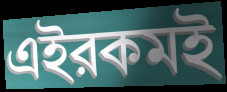
এইরকমই